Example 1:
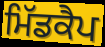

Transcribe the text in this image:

ਮਿੱਡਕੈਪ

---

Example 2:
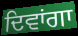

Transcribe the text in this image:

ਦਿਵਾਂਗਾ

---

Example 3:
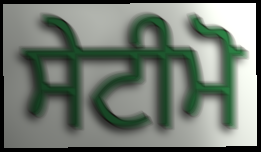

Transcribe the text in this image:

ਸੇਟੀਮੋ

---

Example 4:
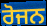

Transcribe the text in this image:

ਰੋਜਨ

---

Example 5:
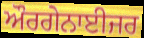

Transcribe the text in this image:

ਔਰਗੇਨਾਈਜਰ